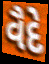
વૈદે